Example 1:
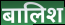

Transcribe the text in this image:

बालिश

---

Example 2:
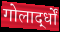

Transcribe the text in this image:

गोलार्द्धों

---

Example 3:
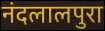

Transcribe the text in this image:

नंदलालपुरा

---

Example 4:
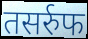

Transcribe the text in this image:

तसर्रुफ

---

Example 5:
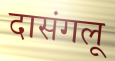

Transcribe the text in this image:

दासंगलू